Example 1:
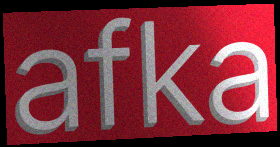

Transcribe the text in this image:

afka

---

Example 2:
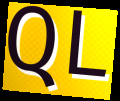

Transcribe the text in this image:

QL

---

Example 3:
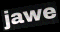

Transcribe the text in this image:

jawe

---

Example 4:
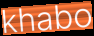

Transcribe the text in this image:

khabo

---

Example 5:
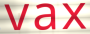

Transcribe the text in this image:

vax